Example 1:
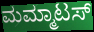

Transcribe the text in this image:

ಮಮ್ಮಾಟಸ್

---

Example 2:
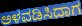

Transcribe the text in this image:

ಅಳವಡಿಸಿದಾಗ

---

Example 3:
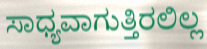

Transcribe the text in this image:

ಸಾಧ್ಯವಾಗುತ್ತಿರಲಿಲ್ಲ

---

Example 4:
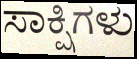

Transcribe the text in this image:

ಸಾಕ್ಷಿಗಳು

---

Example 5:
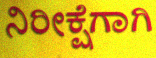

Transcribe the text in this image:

ನಿರೀಕ್ಷೆಗಾಗಿ